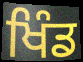
ਖਿੰਡ